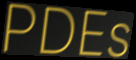
PDEs